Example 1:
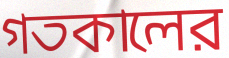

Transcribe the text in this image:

গতকালের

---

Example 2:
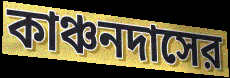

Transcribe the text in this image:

কাঞ্চনদাসের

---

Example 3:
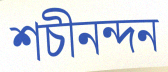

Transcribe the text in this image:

শচীনন্দন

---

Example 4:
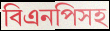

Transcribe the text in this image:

বিএনপিসহ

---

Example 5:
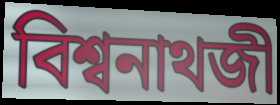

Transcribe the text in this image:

বিশ্বনাথজী